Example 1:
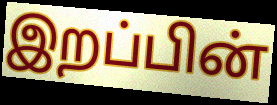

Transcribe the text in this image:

இறப்பின்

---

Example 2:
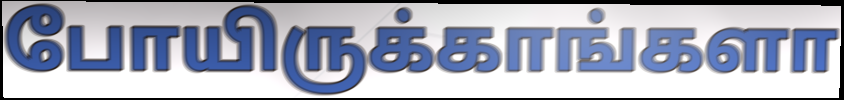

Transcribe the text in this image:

போயிருக்காங்களா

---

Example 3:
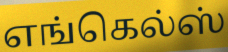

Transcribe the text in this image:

எங்கெல்ஸ்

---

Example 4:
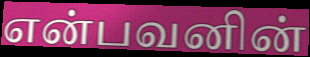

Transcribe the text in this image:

என்பவனின்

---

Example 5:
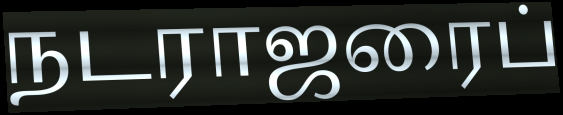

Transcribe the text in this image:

நடராஜரைப்